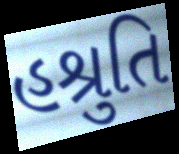
હશ્રુતિ